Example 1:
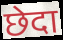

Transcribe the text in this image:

छेदा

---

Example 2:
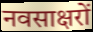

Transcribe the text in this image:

नवसाक्षरों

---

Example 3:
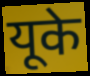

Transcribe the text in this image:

यूके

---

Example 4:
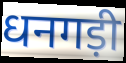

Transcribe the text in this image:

धनगड़ी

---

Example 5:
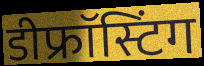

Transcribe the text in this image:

डीफ्रॉस्टिंग